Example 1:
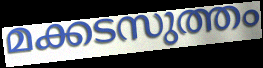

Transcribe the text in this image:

മക്കടസുത്തം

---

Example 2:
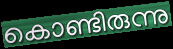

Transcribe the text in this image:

കൊണ്ടിരുന്നു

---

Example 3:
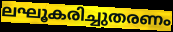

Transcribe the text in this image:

ലഘൂകരിച്ചുതരണം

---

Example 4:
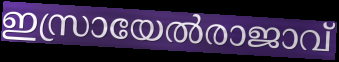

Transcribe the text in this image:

ഇസ്രായേൽരാജാവ്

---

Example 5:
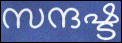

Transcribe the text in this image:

സന്ദഷ്ട